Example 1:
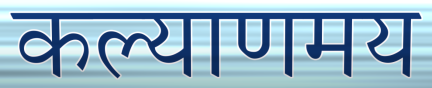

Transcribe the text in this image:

कल्याणमय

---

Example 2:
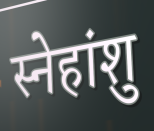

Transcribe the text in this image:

स्नेहांशु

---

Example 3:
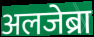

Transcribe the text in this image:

अलजेब्रा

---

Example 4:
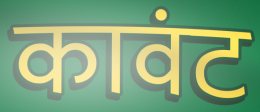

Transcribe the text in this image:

कावंट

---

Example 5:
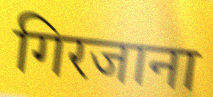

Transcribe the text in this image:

गिरजाना